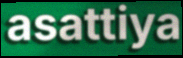
asattiya